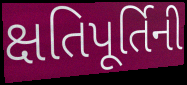
ક્ષતિપૂર્તિની